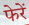
फेरें